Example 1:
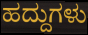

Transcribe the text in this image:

ಹದ್ದುಗಳು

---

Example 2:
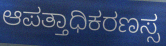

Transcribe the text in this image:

ಆಪತ್ತಾಧಿಕರಣಸ್ಸ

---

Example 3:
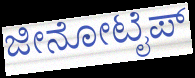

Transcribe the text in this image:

ಜೀನೋಟೈಪ್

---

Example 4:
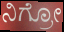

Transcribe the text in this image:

ನಿಗ್ರೋ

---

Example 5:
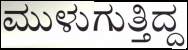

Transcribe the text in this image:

ಮುಳುಗುತ್ತಿದ್ದ